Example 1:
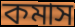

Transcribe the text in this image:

কমাস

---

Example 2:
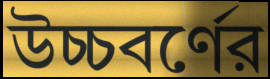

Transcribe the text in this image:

উচ্চবর্ণের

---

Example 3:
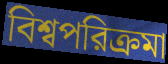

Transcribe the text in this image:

বিশ্বপরিক্রমা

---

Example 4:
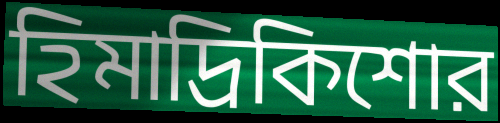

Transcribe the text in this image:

হিমাদ্রিকিশোর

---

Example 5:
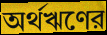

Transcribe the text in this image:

অর্থঋণের